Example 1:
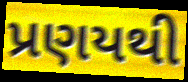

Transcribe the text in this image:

પ્રણયથી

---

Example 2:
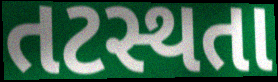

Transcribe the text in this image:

તટસ્થતા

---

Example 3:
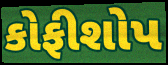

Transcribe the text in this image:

કોફીશોપ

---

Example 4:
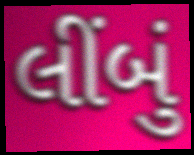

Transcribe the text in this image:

લીંબું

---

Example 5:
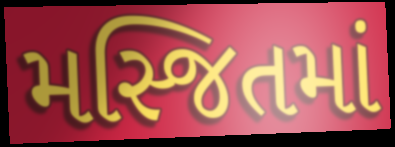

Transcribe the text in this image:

મસ્જિતમાં